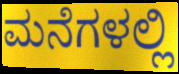
ಮನೆಗಳಲ್ಲಿ